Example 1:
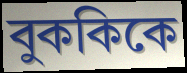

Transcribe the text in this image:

বুককিকে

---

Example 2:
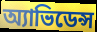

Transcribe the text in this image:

অ্যাভিডেন্স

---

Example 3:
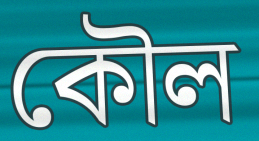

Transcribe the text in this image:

কৌল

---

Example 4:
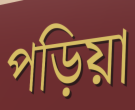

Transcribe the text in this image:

পড়িয়া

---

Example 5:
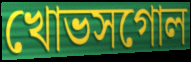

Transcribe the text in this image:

খোভসগোল